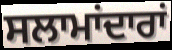
ਸਲਾਮਾਂਦਾਰਾਂ